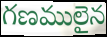
గణములైన